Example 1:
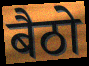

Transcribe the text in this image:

बैठो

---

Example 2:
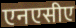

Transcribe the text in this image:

एनएसीए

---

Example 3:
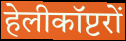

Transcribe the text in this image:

हेलीकॉप्टरों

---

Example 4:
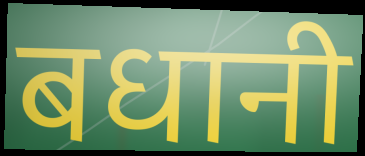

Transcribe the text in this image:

बधानी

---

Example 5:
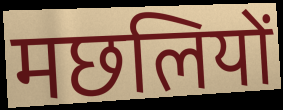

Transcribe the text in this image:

मछलियों